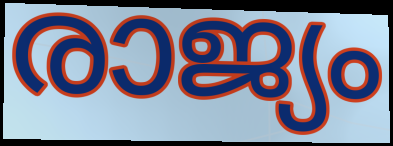
രാജ്യം